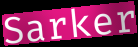
Sarker